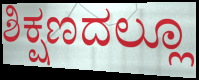
ಶಿಕ್ಷಣದಲ್ಲೂ